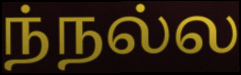
ந்நல்ல